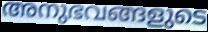
അനുഭവങ്ങളുടെ